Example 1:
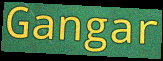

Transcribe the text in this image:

Gangar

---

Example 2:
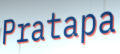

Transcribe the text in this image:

Pratapa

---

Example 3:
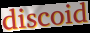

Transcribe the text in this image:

discoid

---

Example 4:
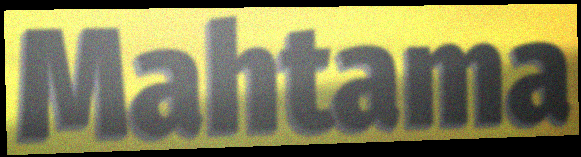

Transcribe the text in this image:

Mahtama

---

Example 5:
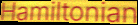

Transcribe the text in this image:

Hamiltonian